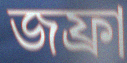
জফ্রা